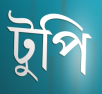
টুপি